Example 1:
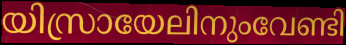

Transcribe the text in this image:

യിസ്രായേലിനുംവേണ്ടി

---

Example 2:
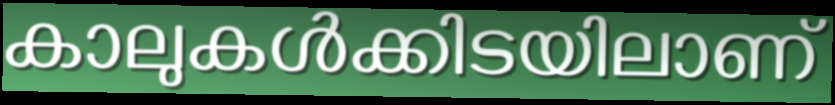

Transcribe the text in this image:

കാലുകൾക്കിടയിലാണ്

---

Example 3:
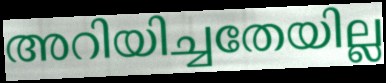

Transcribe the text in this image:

അറിയിച്ചതേയില്ല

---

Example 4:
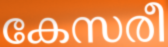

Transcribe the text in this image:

കേസരീ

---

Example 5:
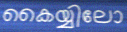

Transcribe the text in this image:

കൈയ്യിലോ